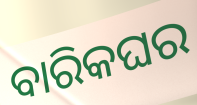
ବାରିକଘର